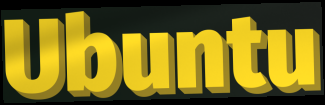
Ubuntu